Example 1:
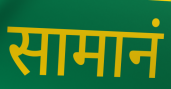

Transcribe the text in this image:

सामानं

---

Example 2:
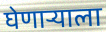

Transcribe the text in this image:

घेणार्‍याला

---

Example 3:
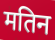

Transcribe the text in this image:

मतिन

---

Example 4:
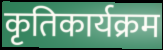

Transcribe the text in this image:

कृतिकार्यक्रम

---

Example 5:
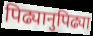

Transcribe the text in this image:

पिढ्यानुपिढ्या